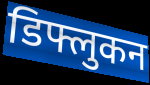
डिफ्लुकन